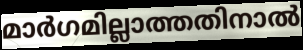
മാർഗമില്ലാത്തതിനാൽ